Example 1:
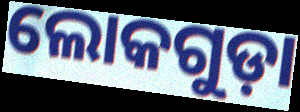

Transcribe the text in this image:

ଲୋକଗୁଡ଼ା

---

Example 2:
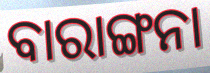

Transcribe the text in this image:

ବାରାଙ୍ଗନା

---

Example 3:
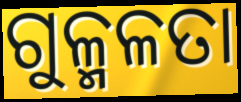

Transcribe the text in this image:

ଗୁଳ୍ମଳତା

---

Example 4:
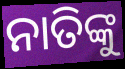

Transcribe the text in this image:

ନାତିଙ୍କୁ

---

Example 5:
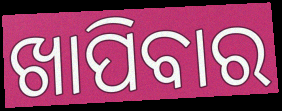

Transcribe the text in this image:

ଖାପିବାର